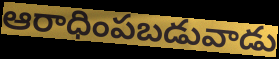
ఆరాధింపబడువాడు